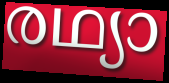
രഥ്യാ